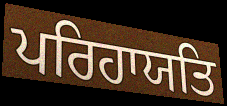
ਪਰਿਹਾਯਤਿ